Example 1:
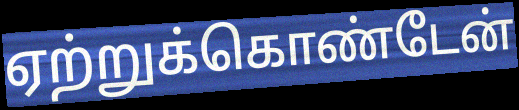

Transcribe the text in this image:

ஏற்றுக்கொண்டேன்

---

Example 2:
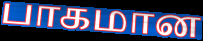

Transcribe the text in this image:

பாகமான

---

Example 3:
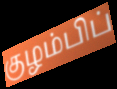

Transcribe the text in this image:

குழம்பிப்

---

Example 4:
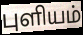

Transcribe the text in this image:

புளியம்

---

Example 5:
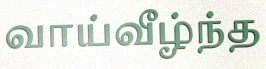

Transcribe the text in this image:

வாய்வீழ்ந்த